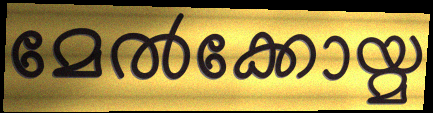
മേൽക്കോയ്മ